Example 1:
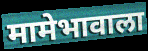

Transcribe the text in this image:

मामेभावाला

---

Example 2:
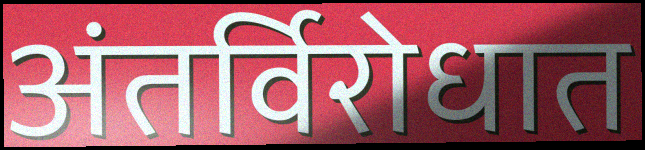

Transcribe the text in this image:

अंतर्विरोधात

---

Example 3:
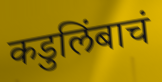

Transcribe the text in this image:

कडुलिंबाचं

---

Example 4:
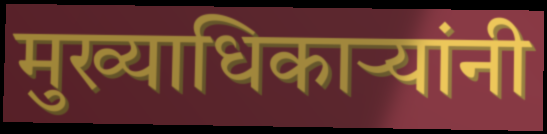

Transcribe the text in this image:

मुख्याधिकाऱ्यांनी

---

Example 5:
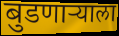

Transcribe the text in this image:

बुडणाऱ्याला